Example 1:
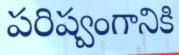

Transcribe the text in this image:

పరిష్వంగానికి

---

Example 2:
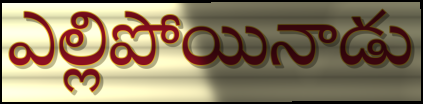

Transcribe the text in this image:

ఎల్లిపోయినాడు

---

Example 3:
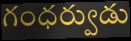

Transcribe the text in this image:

గంధర్వుడు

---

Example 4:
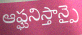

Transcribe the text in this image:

ఆఫ్ఘనిస్తాన్పై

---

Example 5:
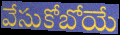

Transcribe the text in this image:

వేసుకోబోయే